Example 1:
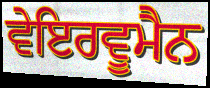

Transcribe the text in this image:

ਵੇਇਰਵੂਮੈਨ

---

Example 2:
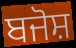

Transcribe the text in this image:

ਬਜੋਸ਼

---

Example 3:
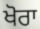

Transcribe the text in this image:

ਖੋਰਾ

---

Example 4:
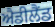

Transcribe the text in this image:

ਐਡੀਲੈਂਡ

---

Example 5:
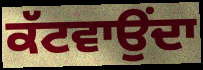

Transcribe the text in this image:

ਕੱਟਵਾਉਂਦਾ